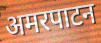
अमरपाटन